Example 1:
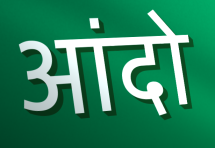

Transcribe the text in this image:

आंदो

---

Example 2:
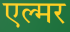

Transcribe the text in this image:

एल्मर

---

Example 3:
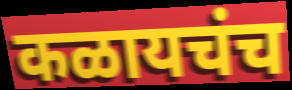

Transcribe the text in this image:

कळायचंच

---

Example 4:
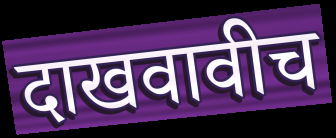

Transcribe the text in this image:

दाखवावीच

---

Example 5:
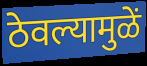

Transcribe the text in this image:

ठेवल्यामुळें